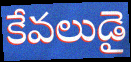
కేవలుడై